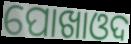
ପୋଖାଓଦ